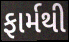
ફાર્મથી